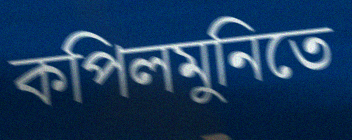
কপিলমুনিতে